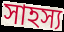
সাহস্য